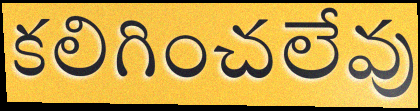
కలిగించలేవు